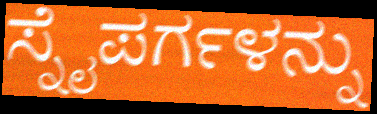
ಸ್ನೈಪರ್ಗಳನ್ನು